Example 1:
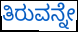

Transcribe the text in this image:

ತಿರುವನ್ನೇ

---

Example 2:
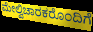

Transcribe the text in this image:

ಮೇಲ್ವಿಚಾರಕರೊಂದಿಗೆ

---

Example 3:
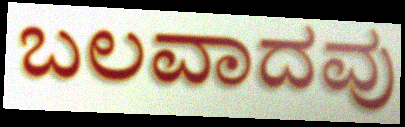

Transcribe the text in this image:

ಬಲವಾದವು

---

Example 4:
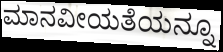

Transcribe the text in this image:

ಮಾನವೀಯತೆಯನ್ನೂ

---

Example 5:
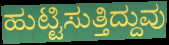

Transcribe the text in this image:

ಹುಟ್ಟಿಸುತ್ತಿದ್ದುವು